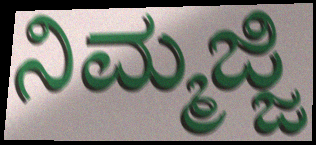
ನಿಮ್ಮಜ್ಜಿ